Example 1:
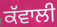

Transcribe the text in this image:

ਕੱਵਾਲੀ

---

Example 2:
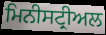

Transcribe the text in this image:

ਮਿਨੀਸਟ੍ਰੀਅਲ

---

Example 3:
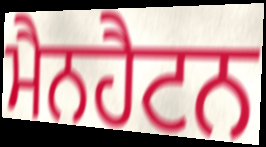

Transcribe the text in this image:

ਮੈਨਹੈਟਨ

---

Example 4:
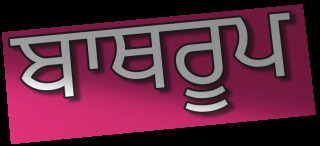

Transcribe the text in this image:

ਬਾਥਰੂਪ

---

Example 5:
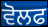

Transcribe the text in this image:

ਵੋਲਫ